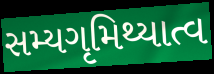
સમ્યગૃમિથ્યાત્વ